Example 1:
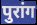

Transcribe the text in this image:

पुरांग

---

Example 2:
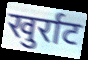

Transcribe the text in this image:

खुर्राट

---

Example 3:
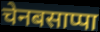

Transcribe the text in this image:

चेनबसाप्पा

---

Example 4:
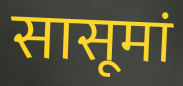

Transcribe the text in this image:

सासूमां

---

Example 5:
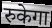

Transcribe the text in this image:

रुकेगा